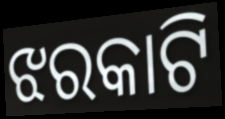
ଝରକାଟି